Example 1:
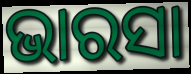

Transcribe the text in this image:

ଭାରସା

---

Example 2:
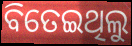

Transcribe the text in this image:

ବିତେଇଥିଲୁ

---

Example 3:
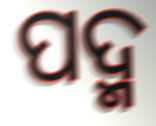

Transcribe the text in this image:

ପଦ୍ମ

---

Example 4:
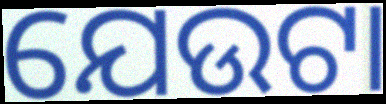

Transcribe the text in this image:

ଯେଉଟା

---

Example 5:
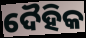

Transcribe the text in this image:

ଦୈହିକ